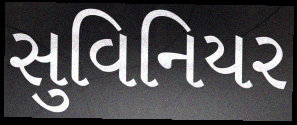
સુવિનિયર